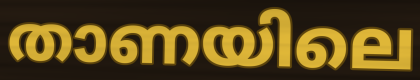
താണയിലെ